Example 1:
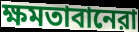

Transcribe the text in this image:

ক্ষমতাবানেরা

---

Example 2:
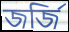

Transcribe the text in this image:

জর্জি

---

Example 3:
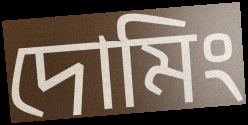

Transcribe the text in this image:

দোমিং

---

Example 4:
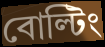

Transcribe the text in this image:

বোল্টিং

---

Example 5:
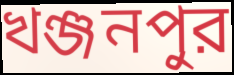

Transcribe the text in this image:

খঞ্জনপুর